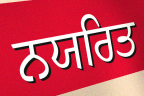
ਨਯਰਿਤ